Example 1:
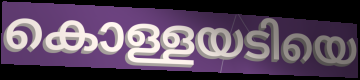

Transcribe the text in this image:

കൊള്ളയടിയെ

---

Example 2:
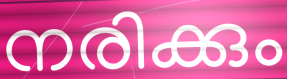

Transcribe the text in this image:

നരിക്കും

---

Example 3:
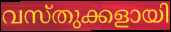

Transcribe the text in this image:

വസ്തുക്കളായി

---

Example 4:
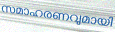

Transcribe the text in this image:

സമാഹരണവുമായി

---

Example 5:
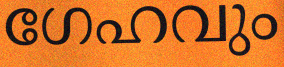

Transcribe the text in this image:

ഗേഹവും